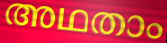
അഥതാം